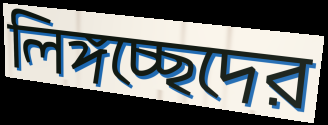
লিঙ্গচ্ছেদের